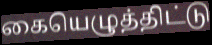
கையெழுத்திட்டு